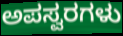
ಅಪಸ್ವರಗಳು